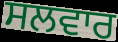
ਸਲਵਾਰ